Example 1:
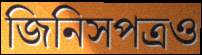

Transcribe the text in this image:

জিনিসপত্রও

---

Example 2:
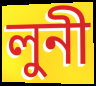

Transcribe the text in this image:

লুনী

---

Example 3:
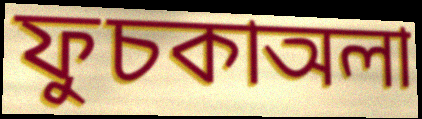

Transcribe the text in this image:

ফুচকাঅলা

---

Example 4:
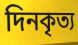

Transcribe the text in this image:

দিনকৃত্য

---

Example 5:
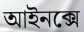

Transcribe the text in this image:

আইনক্সে